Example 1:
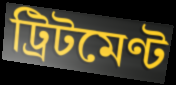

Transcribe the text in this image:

ট্ৰিটমেণ্ট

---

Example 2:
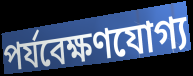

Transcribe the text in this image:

পৰ্যবেক্ষণযোগ্য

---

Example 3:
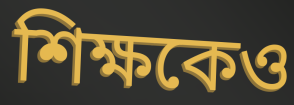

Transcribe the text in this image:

শিক্ষকেও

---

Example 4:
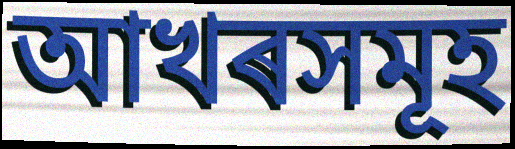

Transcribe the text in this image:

আখৰসমূহ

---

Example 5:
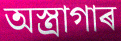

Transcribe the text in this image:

অস্ত্ৰাগাৰ